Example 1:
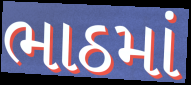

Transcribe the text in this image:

ભાઠમાં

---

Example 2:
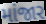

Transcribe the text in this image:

માંજાર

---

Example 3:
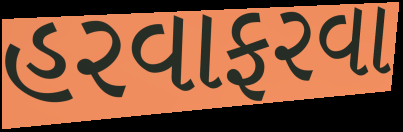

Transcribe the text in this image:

હરવાફરવા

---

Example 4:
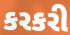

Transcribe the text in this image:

કરકરી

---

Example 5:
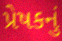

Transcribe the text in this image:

પ્રેષકનું